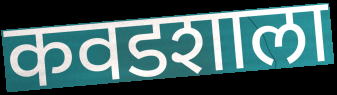
कवडशाला